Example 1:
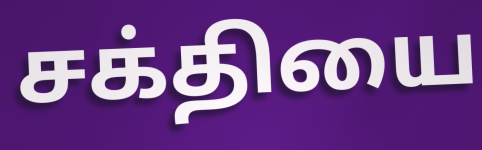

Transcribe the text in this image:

சக்தியை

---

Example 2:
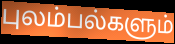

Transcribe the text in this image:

புலம்பல்களும்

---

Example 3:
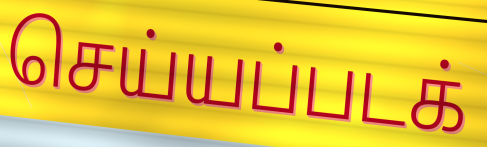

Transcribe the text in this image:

செய்யப்படக்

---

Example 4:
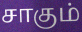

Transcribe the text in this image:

சாகும்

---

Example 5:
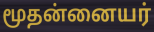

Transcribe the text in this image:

மூதன்னையர்